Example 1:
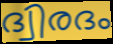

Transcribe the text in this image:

ദ്വിരദം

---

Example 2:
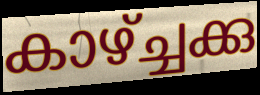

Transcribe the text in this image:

കാഴ്ച്ചക്കു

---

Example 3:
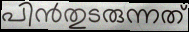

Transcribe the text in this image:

പിൻതുടരുന്നത്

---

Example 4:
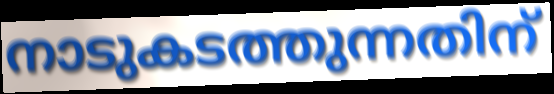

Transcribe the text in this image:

നാടുകടത്തുന്നതിന്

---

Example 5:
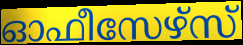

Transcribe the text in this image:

ഓഫീസേഴ്സ്